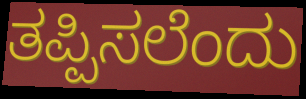
ತಪ್ಪಿಸಲೆಂದು